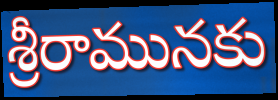
శ్రీరామునకు